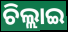
ଚିଲ୍ଲାଇ